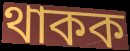
থাকক